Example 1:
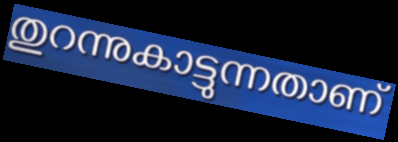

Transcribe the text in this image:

തുറന്നുകാട്ടുന്നതാണ്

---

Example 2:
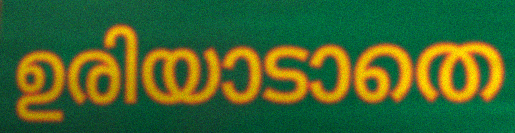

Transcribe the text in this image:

ഉരിയാടാതെ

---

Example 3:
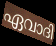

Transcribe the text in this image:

ഏവാദി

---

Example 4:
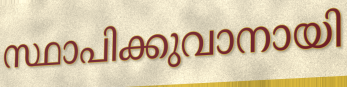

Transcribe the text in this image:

സ്ഥാപിക്കുവാനായി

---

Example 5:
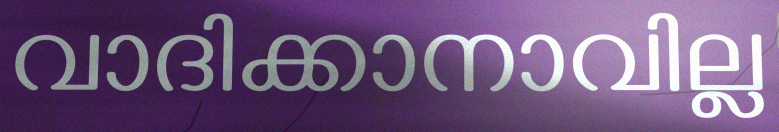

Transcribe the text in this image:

വാദിക്കാനാവില്ല